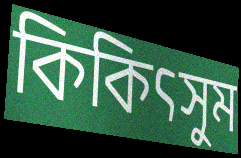
কিকিৎসুম